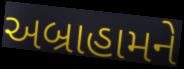
અબ્રાહામને